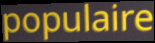
populaire